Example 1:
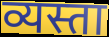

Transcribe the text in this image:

व्यस्ता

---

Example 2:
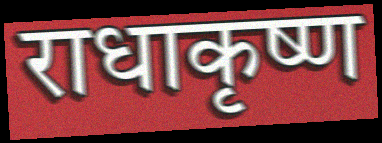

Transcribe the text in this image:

राधाकृष्ण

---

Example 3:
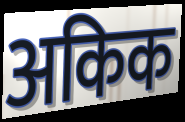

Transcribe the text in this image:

अकिक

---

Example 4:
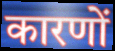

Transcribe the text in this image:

कारणों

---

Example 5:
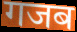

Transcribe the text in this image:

गजब